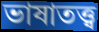
ভাষাতত্ত্ব